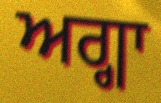
ਅਗ੍ਗਾ